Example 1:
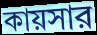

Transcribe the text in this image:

কায়সার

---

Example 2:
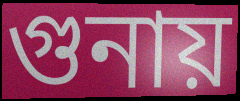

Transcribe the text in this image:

গুনায়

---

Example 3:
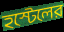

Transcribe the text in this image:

হস্টেলের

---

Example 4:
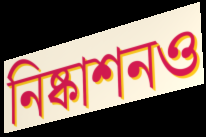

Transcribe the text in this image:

নিষ্কাশনও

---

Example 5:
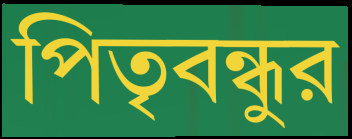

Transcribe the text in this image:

পিতৃবন্ধুর